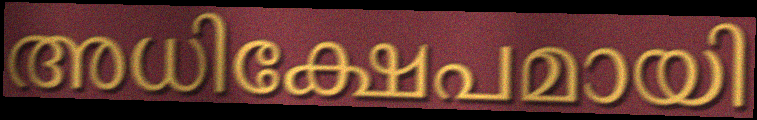
അധിക്ഷേപമായി